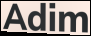
Adim